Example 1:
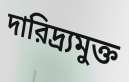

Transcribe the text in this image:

দারিদ্র্যমুক্ত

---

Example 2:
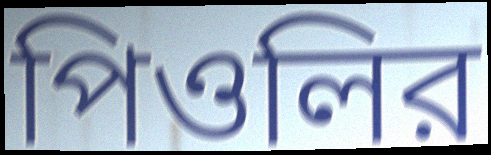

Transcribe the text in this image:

পিওলির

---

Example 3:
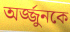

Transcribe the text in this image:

অর্জ্জুনকে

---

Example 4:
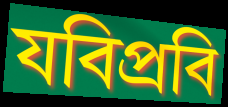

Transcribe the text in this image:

যবিপ্রবি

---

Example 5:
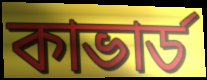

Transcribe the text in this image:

কাভার্ড